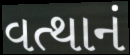
વત્થાનં